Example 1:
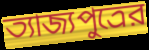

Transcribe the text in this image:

ত্যাজ্যপুত্রের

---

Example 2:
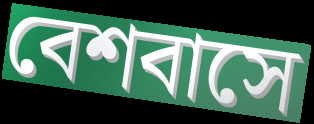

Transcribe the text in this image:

বেশবাসে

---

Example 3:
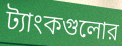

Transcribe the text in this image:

ট্যাংকগুলোর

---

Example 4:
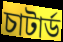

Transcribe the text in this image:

চাটার্ড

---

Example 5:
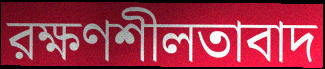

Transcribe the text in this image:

রক্ষণশীলতাবাদ